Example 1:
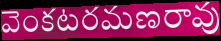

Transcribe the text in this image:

వెంకటరమణరావు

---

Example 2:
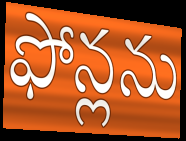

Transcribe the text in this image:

ఫోన్లను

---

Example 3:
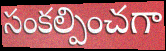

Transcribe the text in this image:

సంకల్పించగా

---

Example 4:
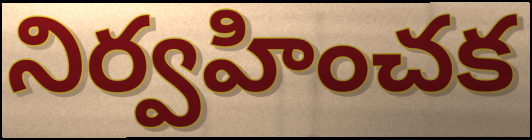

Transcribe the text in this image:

నిర్వహించక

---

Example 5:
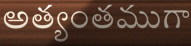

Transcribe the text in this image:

అత్యంతముగా